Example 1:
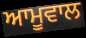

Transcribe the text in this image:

ਆਮੂਵਾਲ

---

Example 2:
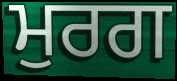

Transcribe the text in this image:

ਮੁਰਗ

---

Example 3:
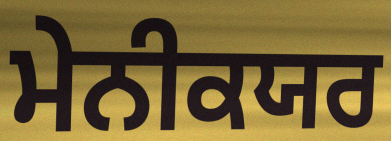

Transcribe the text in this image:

ਮੇਨੀਕਯਰ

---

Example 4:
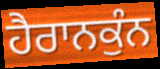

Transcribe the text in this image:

ਹੈਰਾਨਕੁੰਨ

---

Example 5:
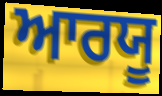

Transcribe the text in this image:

ਆਰਯੂ